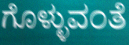
ಗೊಳ್ಳುವಂತೆ